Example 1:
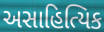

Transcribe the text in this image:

અસાહિત્યિક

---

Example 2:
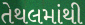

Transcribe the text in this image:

તેથલમાંથી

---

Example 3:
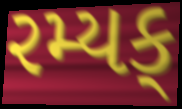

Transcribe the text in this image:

રમ્યક્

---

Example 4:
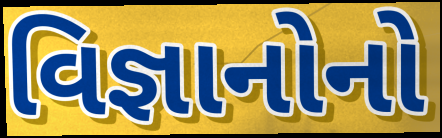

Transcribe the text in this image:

વિજ્ઞાનોનો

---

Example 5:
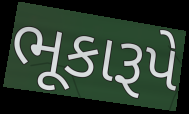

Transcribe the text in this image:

ભૂકારૂપે